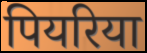
पियरिया